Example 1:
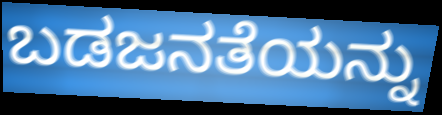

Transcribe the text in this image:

ಬಡಜನತೆಯನ್ನು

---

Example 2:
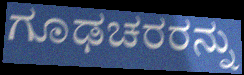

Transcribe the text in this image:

ಗೂಢಚರರನ್ನು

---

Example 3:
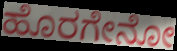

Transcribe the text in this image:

ಹೊರಗೇನೋ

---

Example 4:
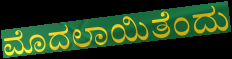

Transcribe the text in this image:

ಮೊದಲಾಯಿತೆಂದು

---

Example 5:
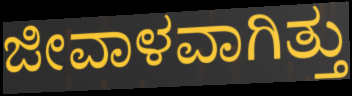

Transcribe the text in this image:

ಜೀವಾಳವಾಗಿತ್ತು